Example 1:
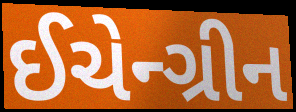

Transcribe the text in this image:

ઈચેન્ગ્રીન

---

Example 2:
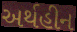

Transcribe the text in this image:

અર્થહીન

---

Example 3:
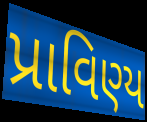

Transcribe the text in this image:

પ્રાવિણ્ય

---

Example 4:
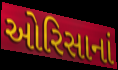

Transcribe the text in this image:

ઓરિસાનાં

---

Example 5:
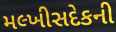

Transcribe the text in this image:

મલ્ખીસદેકની